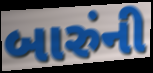
બારુંની